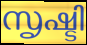
സൃഷ്ടി